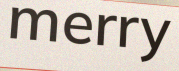
merry